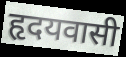
हृदयवासी